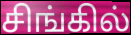
சிங்கில்